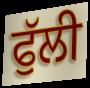
ਫੁੱਲੀ